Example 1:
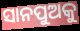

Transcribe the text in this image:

ସାନପୁଅକୁ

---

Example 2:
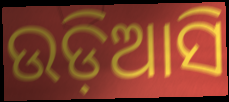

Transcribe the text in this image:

ଉଡ଼ିଆସି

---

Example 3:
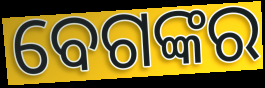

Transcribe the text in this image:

ବେଗଙ୍କର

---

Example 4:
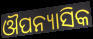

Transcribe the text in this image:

ଔପନ୍ୟାସିକ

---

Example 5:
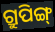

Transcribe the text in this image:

ଗ୍ରୁପିଙ୍ଗ୍